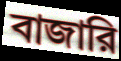
বাজারি